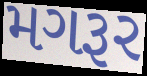
મગરૂર